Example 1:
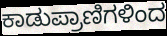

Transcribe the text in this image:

ಕಾಡುಪ್ರಾಣಿಗಳಿಂದ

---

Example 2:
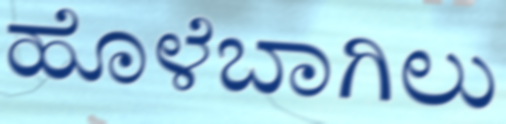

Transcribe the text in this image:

ಹೊಳೆಬಾಗಿಲು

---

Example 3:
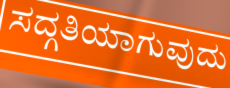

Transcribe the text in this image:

ಸದ್ಗತಿಯಾಗುವುದು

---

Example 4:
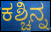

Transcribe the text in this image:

ಕಶ್ಚಿನ್ನ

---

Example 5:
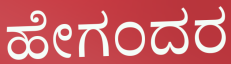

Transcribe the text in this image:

ಹೇಗಂದರ